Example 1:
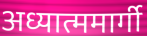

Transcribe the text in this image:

अध्यात्ममार्गी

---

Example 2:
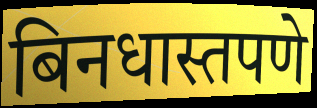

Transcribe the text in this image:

बिनधास्तपणे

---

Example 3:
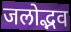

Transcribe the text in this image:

जलोद्भव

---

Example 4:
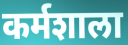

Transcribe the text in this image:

कर्मशाला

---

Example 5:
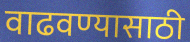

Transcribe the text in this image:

वाढवण्यासाठी